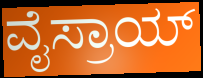
ವೈಸ್ರಾಯ್